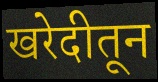
खरेदीतून